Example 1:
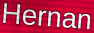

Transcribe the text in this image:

Hernan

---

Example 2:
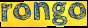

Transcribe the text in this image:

rongo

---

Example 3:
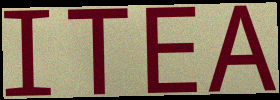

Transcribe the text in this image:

ITEA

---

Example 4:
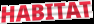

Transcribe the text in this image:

HABITAT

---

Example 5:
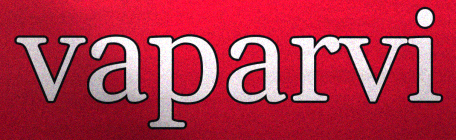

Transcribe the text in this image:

vaparvi